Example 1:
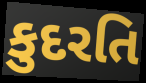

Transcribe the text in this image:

કુદરતિ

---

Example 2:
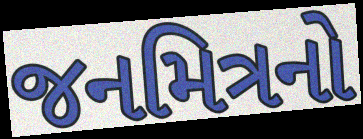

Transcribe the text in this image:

જનમિત્રનો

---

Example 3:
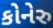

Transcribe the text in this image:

કોનેરુ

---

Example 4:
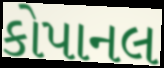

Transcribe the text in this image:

કોપાનલ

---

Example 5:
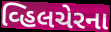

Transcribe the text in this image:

વ્હિલચેરના